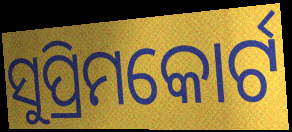
ସୁପ୍ରିମକୋର୍ଟ